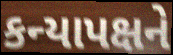
કન્યાપક્ષને